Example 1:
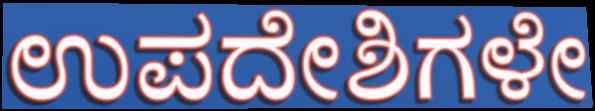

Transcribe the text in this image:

ಉಪದೇಶಿಗಳೇ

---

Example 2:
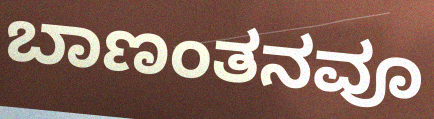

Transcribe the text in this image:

ಬಾಣಂತನವೂ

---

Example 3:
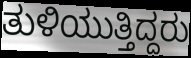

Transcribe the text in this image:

ತುಳಿಯುತ್ತಿದ್ದರು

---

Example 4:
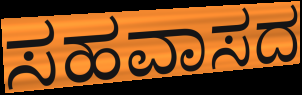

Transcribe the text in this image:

ಸಹವಾಸದ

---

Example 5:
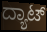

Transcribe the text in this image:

ದ್ಯಾಟ್